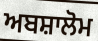
ਅਬਸ਼ਾਲੋਮ